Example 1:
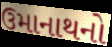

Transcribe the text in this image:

ઉમાનાથનો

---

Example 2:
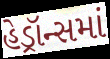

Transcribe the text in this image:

હેડ્રૉન્સમાં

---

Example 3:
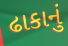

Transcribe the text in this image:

ઢાકાનું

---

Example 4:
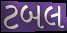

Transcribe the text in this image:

ટબલ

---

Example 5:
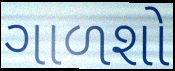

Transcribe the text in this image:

ગાળશો